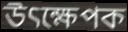
উৎক্ষেপক